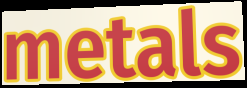
metals